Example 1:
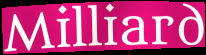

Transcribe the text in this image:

Milliard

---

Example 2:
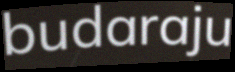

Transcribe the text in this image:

budaraju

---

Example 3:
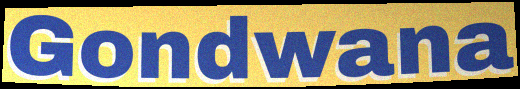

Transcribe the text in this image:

Gondwana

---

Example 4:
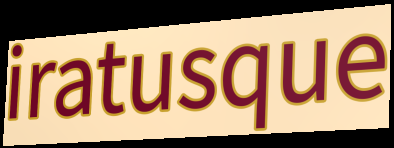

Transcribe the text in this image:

iratusque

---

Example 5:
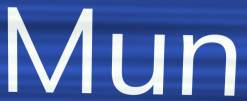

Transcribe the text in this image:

Mun